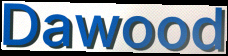
Dawood